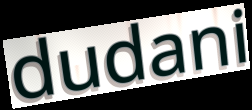
dudani